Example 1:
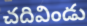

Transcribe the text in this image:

చదివిండు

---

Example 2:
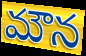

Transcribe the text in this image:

మౌన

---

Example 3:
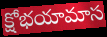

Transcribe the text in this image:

క్షోభయామాస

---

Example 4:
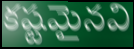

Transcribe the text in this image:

కష్టమైనవి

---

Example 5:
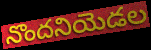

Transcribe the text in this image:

నొందనియెడల